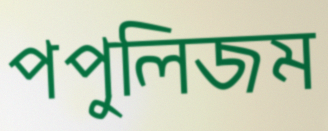
পপুলিজম